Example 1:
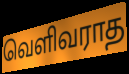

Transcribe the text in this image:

வெளிவராத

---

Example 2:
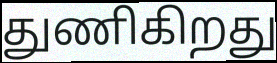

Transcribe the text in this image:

துணிகிறது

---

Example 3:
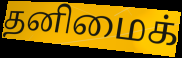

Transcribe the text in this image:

தனிமைக்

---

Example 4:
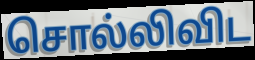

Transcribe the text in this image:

சொல்லிவிட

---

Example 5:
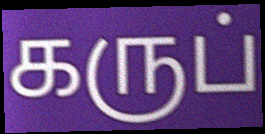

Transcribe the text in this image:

கருப்